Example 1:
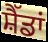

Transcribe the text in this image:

ਸ਼ੈੱਡਾਂ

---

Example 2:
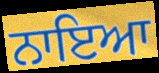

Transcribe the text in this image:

ਨਾਇਆ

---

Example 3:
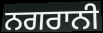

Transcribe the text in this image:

ਨਗਰਾਨੀ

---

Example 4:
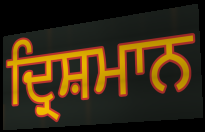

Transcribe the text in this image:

ਦ੍ਰਿਸ਼ਮਾਨ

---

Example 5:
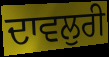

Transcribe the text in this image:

ਦਾਵਲੁਰੀ